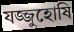
যজ্জুহোষি